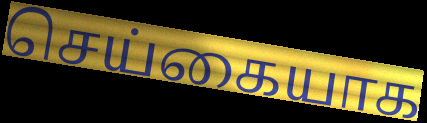
செய்கையாக